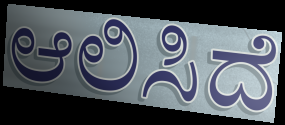
ಆಲಿಸಿದೆ